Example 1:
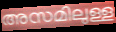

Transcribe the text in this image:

അസമിലുള്ള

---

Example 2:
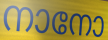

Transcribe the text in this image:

നാനോ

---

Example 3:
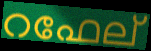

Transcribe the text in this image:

റഫേല്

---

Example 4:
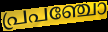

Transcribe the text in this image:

പ്രപഞ്ചോ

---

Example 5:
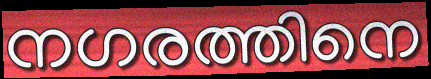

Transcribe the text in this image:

നഗരത്തിനെ